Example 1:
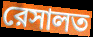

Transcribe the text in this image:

রেসালত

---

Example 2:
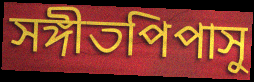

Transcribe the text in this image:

সঙ্গীতপিপাসু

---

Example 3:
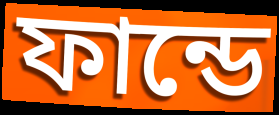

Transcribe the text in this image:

ফান্ডে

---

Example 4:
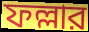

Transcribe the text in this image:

ফল্লার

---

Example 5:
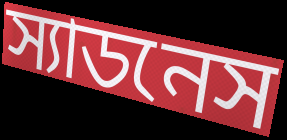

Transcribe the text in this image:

স্যাডনেস